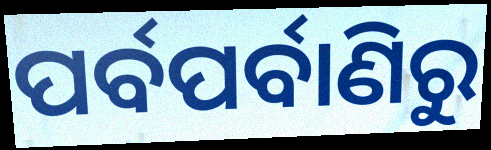
ପର୍ବପର୍ବାଣିରୁ